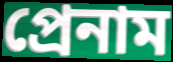
প্রেনাম